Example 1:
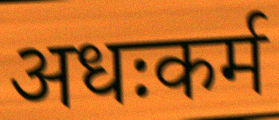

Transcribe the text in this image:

अधःकर्म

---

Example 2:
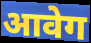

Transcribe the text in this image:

आवेग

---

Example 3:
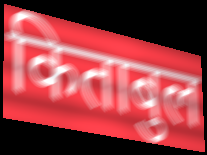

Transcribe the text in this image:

किताबुल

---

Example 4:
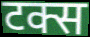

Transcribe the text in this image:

टक्स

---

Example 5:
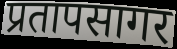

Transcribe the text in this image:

प्रतापसागर